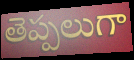
తెప్పలుగా